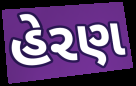
હેરણ